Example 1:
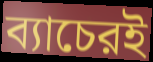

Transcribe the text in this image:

ব্যাচেরই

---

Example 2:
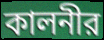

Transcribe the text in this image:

কালনীর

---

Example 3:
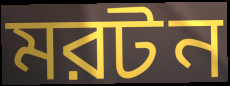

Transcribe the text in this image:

মরটন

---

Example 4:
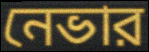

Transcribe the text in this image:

নেভার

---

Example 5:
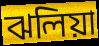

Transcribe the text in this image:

ঝলিয়া